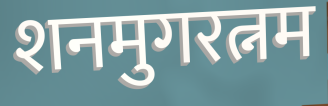
शनमुगरत्नम